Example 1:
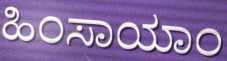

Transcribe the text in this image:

ಹಿಂಸಾಯಾಂ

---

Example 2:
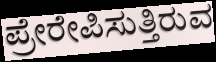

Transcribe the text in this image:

ಪ್ರೇರೇಪಿಸುತ್ತಿರುವ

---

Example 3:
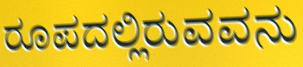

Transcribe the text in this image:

ರೂಪದಲ್ಲಿರುವವನು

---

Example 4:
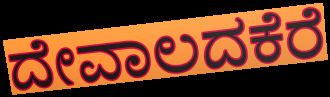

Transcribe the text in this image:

ದೇವಾಲದಕೆರೆ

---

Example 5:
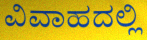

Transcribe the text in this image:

ವಿವಾಹದಲ್ಲಿ